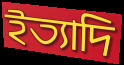
ইত্যাদি